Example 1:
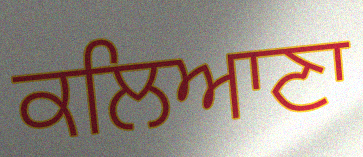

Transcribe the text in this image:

ਕਲਿਆਣਾ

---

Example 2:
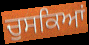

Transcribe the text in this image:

ਚੁਸਕਿਆਂ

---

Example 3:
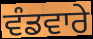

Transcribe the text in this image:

ਵੰਡਵਾਰੇ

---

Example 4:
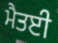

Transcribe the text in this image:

ਮੈਤਈ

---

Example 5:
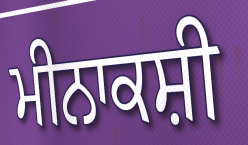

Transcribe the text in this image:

ਮੀਨਾਕਸ਼ੀ